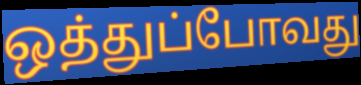
ஒத்துப்போவது